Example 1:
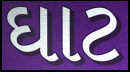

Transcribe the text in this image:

ઘાટ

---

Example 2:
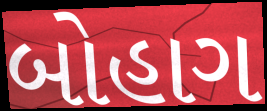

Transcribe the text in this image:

બોહાગ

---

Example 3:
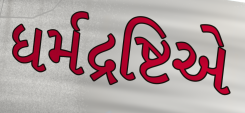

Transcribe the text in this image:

ધર્મદ્રષ્ટિએ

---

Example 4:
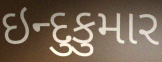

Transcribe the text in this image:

ઇન્દુકુમાર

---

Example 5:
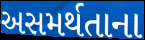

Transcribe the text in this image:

અસમર્થતાના